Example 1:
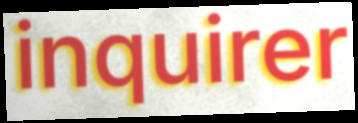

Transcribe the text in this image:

inquirer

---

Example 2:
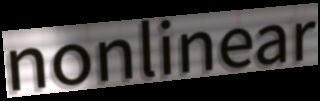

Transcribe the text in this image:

nonlinear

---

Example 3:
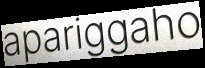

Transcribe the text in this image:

apariggaho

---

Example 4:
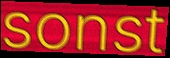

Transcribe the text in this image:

sonst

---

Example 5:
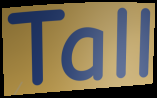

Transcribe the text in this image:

Tall